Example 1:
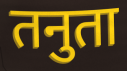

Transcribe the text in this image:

तनुता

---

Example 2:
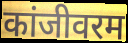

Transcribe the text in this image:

कांजीवरम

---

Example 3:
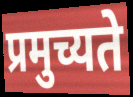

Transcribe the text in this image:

प्रमुच्यते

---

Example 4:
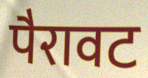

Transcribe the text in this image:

पैरावट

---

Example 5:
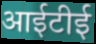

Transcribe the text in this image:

आईटीई